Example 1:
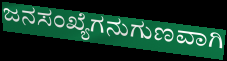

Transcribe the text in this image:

ಜನಸಂಖ್ಯೆಗನುಗುಣವಾಗಿ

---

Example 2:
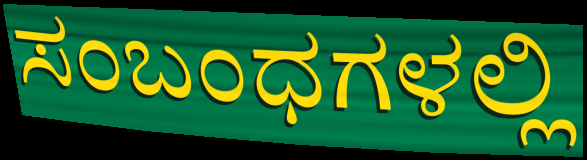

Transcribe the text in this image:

ಸಂಬಂಧಗಳಲ್ಲಿ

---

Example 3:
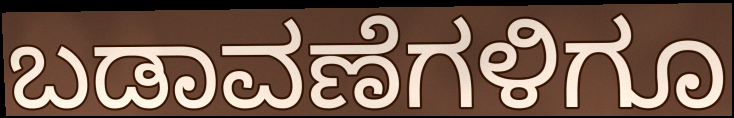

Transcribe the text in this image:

ಬಡಾವಣೆಗಳಿಗೂ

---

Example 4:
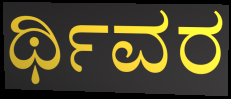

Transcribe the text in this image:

ರ್ಥಿವರ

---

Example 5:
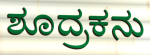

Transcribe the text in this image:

ಶೂದ್ರಕನು